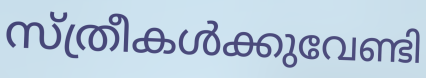
സ്ത്രീകൾക്കുവേണ്ടി